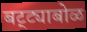
बट्ट्याबोळ